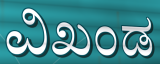
ವಿಖಂಡ